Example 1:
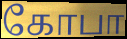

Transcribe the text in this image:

கோபா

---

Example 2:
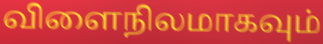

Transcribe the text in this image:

விளைநிலமாகவும்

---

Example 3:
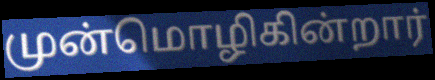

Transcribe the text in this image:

முன்மொழிகின்றார்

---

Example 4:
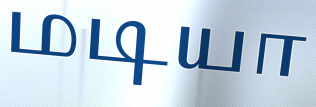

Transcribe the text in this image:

மடியா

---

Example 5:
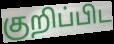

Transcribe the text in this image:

குறிப்பிட